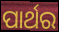
ପାର୍ଥର